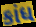
કાંધ